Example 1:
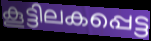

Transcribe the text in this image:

കൂട്ടിലകപ്പെട്ട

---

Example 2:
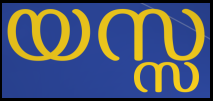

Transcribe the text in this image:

യസ്സ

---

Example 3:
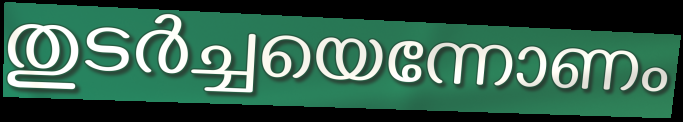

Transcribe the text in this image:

തുടർച്ചയെന്നോണം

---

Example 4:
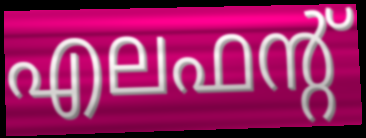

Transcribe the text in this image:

എലഫന്റ്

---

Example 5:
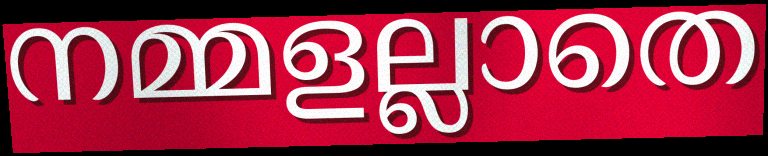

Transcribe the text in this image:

നമ്മളല്ലാതെ